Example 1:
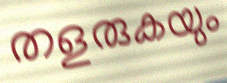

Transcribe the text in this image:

തളരുകയും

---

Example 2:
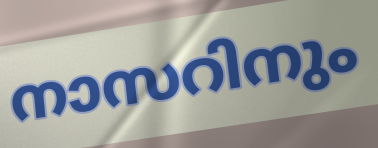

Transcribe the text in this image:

നാസറിനും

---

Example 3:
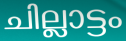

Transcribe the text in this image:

ചില്ലാട്ടം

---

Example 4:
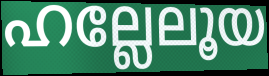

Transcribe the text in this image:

ഹല്ലേലൂയ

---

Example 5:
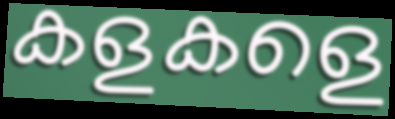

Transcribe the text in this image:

കളകളെ